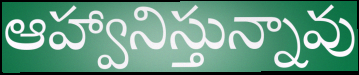
ఆహ్వానిస్తున్నావు